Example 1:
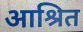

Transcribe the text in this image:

आश्रित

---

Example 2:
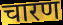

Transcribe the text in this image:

चारण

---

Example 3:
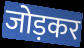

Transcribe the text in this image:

जोड़कर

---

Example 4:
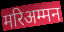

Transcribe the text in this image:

मरिअम्मन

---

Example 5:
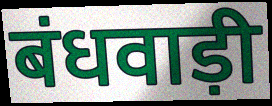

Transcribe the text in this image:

बंधवाड़ी